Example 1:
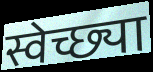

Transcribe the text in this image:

स्वेच्छ्या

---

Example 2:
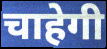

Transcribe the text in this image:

चाहेगी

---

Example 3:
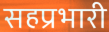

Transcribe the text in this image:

सहप्रभारी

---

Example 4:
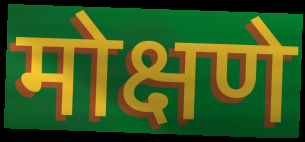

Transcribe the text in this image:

मोक्षणे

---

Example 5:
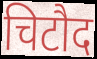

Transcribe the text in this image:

चिटौद